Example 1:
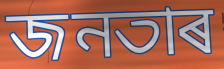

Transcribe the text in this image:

জনতাৰ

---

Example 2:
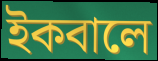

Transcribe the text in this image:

ইকবালে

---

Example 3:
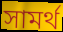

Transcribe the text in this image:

সামৰ্থ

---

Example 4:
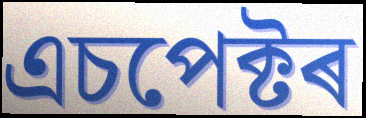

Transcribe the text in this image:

এচপেক্টৰ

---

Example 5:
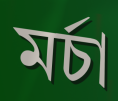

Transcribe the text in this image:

মৰ্চা